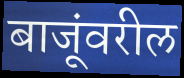
बाजूंवरील